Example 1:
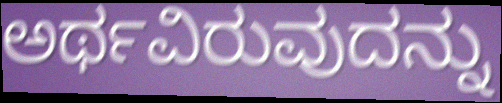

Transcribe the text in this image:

ಅರ್ಥವಿರುವುದನ್ನು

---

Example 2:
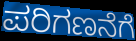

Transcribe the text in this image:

ಪರಿಗಣನೆಗೆ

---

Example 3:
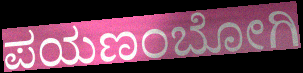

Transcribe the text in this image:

ಪಯಣಂಬೋಗಿ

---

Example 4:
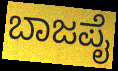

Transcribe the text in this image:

ಬಾಜಪೈ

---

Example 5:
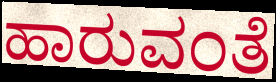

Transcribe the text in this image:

ಹಾರುವಂತೆ